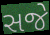
સજે